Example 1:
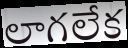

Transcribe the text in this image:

లాగలేక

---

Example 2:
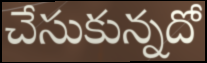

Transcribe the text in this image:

చేసుకున్నదో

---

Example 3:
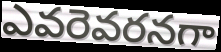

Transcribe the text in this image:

ఎవరెవరనగా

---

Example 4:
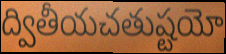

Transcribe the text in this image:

ద్వితీయచతుష్టయో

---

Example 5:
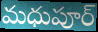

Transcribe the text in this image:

మధుపూర్